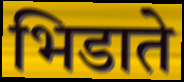
भिडाते